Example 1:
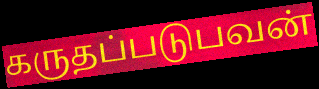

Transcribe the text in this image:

கருதப்படுபவன்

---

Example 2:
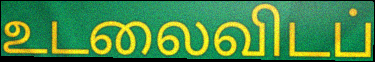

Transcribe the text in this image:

உடலைவிடப்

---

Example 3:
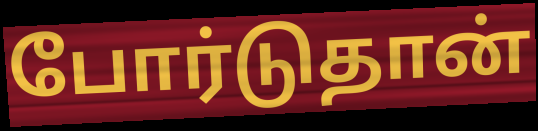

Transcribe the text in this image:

போர்டுதான்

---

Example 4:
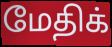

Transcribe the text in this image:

மேதிக்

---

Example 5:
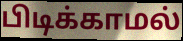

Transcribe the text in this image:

பிடிக்காமல்